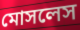
মোসলেস